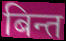
बिन्त